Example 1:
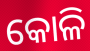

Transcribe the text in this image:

କୋଳି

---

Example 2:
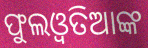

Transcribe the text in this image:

ଫୁଲଓ୍ୱତିଆଙ୍କ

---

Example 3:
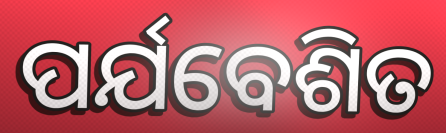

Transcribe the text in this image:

ପର୍ଯବେଶିତ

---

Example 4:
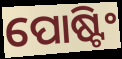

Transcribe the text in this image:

ପୋଷ୍ଟିଂ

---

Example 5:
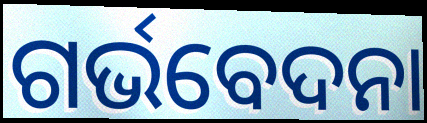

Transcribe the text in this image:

ଗର୍ଭବେଦନା